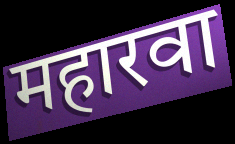
महारवा